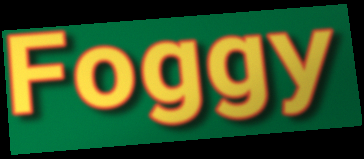
Foggy